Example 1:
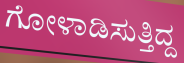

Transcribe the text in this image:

ಗೋಳಾಡಿಸುತ್ತಿದ್ದ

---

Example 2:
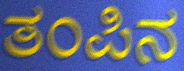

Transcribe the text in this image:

ತಂಪಿನ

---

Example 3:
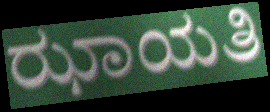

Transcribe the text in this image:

ಝಾಯತಿ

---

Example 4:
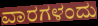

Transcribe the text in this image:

ವಾರಗಳಂದು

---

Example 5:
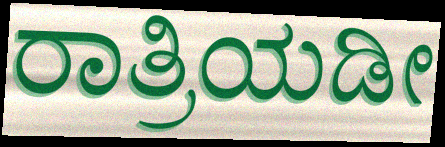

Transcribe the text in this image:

ರಾತ್ರಿಯಡೀ